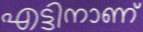
എട്ടിനാണ്